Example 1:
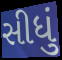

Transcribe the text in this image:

સીધું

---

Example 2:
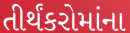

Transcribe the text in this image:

તીર્થંકરોમાંના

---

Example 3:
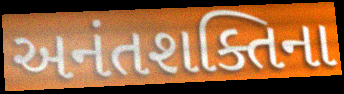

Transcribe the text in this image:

અનંતશક્તિના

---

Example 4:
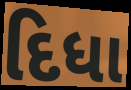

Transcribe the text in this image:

દિધા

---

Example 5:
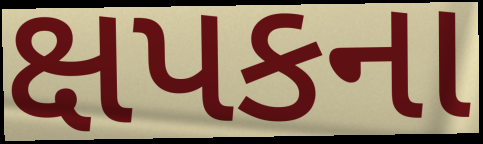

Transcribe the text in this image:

ક્ષપકના